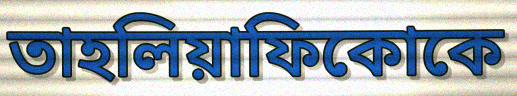
তাহলিয়াফিকোকে